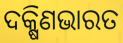
ଦକ୍ଷିଣଭାରତ